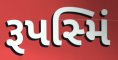
રૂપસ્મિં